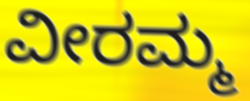
ವೀರಮ್ಮ